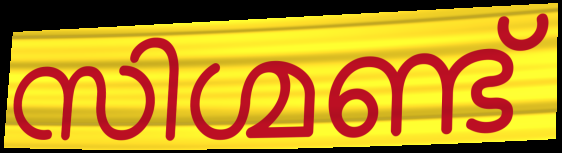
സിഗ്മണ്ട്